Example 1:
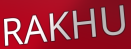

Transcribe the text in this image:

RAKHU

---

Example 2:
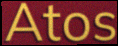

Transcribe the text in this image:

Atos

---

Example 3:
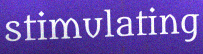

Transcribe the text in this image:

stimulating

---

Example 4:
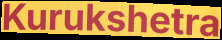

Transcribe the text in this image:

Kurukshetra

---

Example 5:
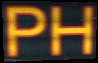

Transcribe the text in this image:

PH